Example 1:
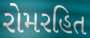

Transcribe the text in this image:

રોમરહિત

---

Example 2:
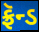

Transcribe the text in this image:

ફ્રૅન્ડ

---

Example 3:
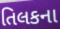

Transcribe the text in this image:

તિલકના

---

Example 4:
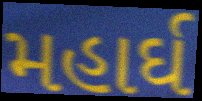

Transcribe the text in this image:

મહાર્ઘ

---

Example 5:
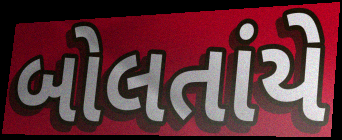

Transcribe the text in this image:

બોલતાંયે